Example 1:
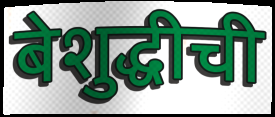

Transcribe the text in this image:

बेशुद्धीची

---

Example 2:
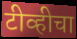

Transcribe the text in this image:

टीव्हीचा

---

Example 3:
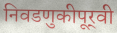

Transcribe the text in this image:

निवडणुकीपूर्वी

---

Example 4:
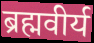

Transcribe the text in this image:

ब्रह्मवीर्य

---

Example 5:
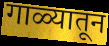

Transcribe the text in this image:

गाळ्यातून